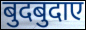
बुदबुदाए